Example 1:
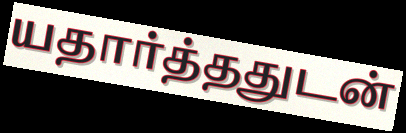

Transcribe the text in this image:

யதார்த்ததுடன்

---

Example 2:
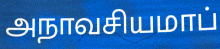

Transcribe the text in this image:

அநாவசியமாப்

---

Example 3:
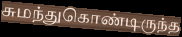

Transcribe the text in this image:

சுமந்துகொண்டிருந்த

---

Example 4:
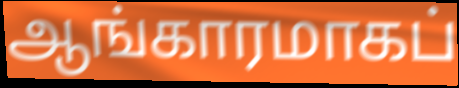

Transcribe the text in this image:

ஆங்காரமாகப்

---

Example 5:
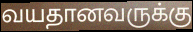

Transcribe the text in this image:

வயதானவருக்கு